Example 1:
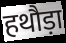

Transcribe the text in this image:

हथौड़ा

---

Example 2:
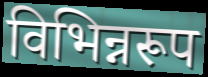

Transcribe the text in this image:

विभिन्नरूप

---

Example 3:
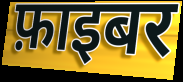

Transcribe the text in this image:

फ़ाइबर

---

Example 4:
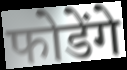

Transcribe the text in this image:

फोडेंगे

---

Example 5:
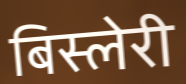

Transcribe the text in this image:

बिस्लेरी